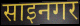
साइनगर